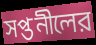
সপ্তনীলের